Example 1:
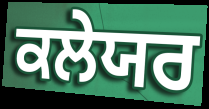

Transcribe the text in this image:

ਕਲੇਯਰ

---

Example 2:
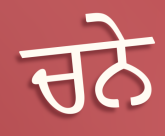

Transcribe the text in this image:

ਚਨੇ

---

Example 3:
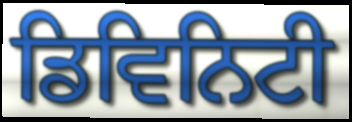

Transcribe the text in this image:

ਡਿਵਿਨਿਟੀ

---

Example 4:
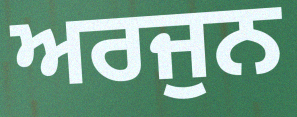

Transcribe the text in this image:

ਅਰਜੁਨ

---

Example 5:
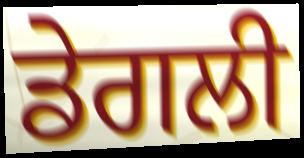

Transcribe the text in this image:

ਡੇਗਲੀ